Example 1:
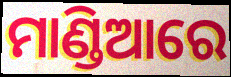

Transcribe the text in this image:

ମାଣ୍ଡିଆରେ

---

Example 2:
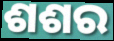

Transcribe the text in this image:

ଶଶର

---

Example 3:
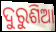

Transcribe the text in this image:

ଦୁରୁଶିଆ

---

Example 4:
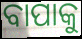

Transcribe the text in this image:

ବାପାକୁ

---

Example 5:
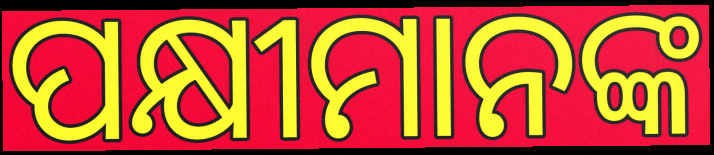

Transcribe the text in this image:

ପକ୍ଷୀମାନଙ୍କ